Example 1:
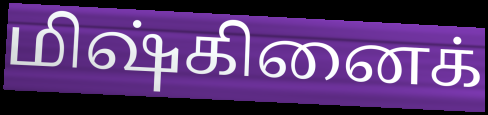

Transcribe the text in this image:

மிஷ்கினைக்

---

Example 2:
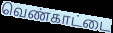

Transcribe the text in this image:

வெண்காட்டை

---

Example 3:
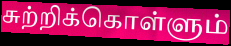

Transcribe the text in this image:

சுற்றிக்கொள்ளும்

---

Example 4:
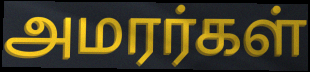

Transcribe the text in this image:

அமரர்கள்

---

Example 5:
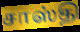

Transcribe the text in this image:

சாஸ்தி